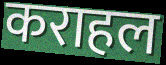
कराहल